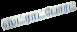
ஸ்ட்ராட்போர்ட்